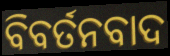
ବିବର୍ତନବାଦ